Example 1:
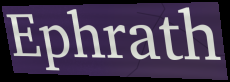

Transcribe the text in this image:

Ephrath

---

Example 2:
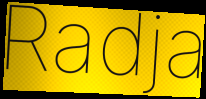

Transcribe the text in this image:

Radja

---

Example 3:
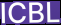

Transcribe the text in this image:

ICBL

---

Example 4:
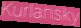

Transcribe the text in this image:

Kurlansky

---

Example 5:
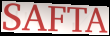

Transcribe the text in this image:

SAFTA